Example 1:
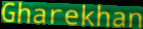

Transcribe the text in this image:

Gharekhan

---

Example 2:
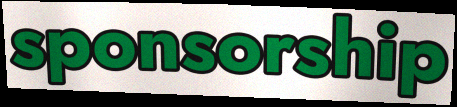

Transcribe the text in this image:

sponsorship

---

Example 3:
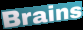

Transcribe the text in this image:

Brains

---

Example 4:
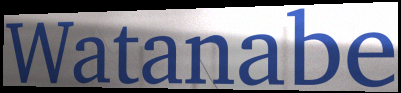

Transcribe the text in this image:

Watanabe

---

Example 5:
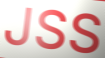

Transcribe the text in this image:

JSS